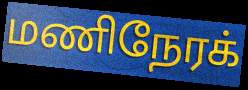
மணிநேரக்